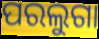
ପରଲୁଗା